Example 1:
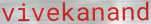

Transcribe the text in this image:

vivekanand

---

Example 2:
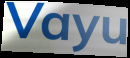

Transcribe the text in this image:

Vayu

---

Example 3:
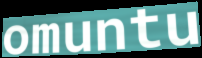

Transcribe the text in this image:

omuntu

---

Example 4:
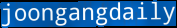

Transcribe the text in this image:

joongangdaily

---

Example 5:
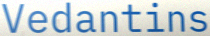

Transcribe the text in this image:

Vedantins